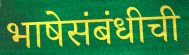
भाषेसंबंधीची